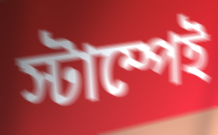
স্টাম্পেই